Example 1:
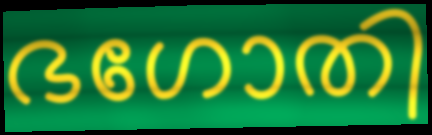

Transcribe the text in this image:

ഭഗോതി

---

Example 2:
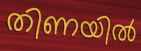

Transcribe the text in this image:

തിണയിൽ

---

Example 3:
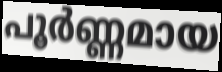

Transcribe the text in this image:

പൂർണ്ണമായ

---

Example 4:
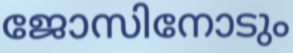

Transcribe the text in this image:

ജോസിനോടും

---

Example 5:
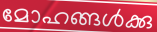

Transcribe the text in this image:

മോഹങ്ങൾക്കു